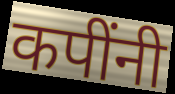
कपींनी